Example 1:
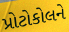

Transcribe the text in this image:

પ્રોટોકોલને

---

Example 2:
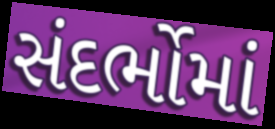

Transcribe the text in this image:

સંદર્ભોમાં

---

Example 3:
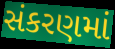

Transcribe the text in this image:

સંકરણમાં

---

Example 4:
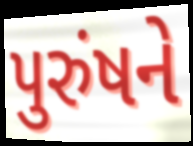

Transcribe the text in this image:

પુરુંષને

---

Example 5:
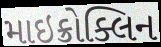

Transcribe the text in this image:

માઇક્રોક્લિન